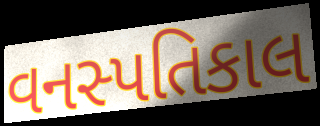
વનસ્પતિકાલ